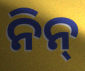
ନିନ୍